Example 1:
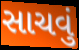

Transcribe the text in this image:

સાચવું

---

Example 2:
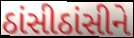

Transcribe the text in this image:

ઠાંસીઠાંસીને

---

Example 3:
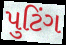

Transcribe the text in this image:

પુટિંગ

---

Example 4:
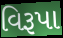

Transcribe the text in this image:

વિરૂપા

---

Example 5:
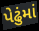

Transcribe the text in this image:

પેઢુંમાં